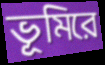
ভূমিরে